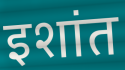
इशांत